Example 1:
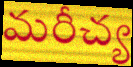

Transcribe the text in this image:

మరీచ్య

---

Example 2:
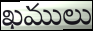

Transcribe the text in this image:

ఖములు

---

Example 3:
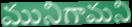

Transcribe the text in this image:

మునిగామని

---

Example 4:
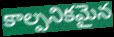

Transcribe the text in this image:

కాల్పనికమైన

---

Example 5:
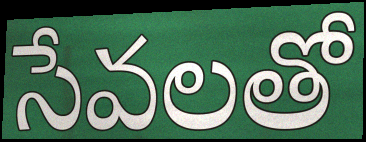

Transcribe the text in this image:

సేవలతో